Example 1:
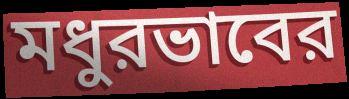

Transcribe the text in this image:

মধুরভাবের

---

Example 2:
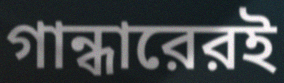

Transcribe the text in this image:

গান্ধারেরই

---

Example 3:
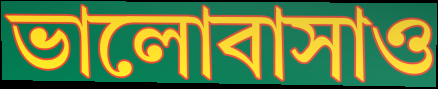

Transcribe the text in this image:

ভালোবাসাও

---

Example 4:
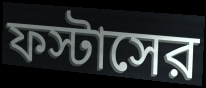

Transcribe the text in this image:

ফস্টাসের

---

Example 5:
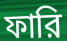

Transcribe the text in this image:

ফারি